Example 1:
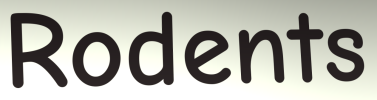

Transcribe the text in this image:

Rodents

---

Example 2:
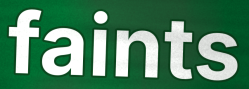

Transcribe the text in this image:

faints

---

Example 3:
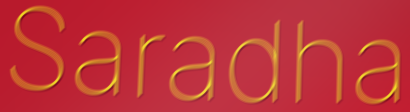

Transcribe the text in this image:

Saradha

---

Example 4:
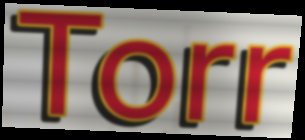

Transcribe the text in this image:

Torr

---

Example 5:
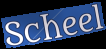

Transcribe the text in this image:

Scheel